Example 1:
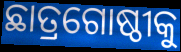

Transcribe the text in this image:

ଛାତ୍ରଗୋଷ୍ଠୀକୁ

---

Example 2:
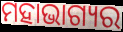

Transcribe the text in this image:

ମହାଭାଗ୍ୟର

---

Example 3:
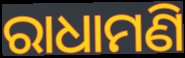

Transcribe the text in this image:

ରାଧାମଣି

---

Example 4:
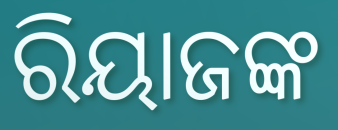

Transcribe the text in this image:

ରିୟାଜଙ୍କ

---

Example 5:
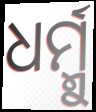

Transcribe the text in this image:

ଧର୍ମ୍ମୁ